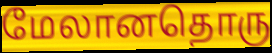
மேலானதொரு